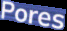
Pores